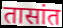
तासांत